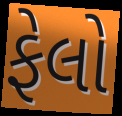
ફેલો